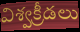
విశ్వక్రీడలు